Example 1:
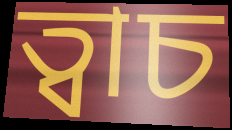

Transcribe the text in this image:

ত্বাচ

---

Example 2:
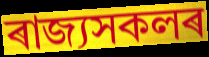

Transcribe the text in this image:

ৰাজ্যসকলৰ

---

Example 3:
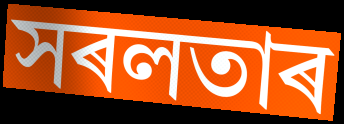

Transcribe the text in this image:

সৰলতাৰ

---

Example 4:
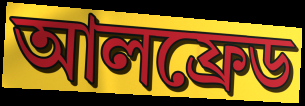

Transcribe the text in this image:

আলফ্ৰেড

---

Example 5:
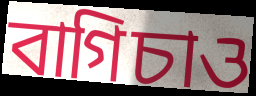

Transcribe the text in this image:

বাগিচাও